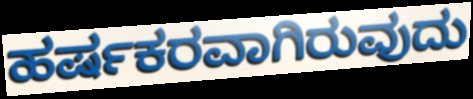
ಹರ್ಷಕರವಾಗಿರುವುದು